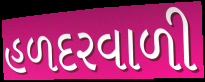
હળદરવાળી